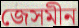
জেসমীন